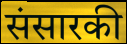
संसारकी